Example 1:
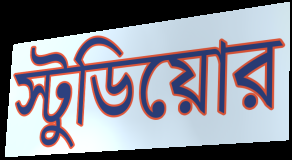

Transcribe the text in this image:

স্টুডিয়োর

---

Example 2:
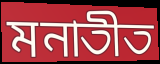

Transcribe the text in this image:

মনাতীত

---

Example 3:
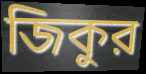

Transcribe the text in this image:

জিকুর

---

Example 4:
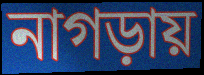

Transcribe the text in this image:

নাগড়ায়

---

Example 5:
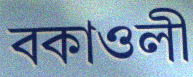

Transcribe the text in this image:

বকাওলী